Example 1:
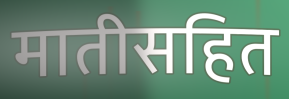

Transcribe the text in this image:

मातीसहित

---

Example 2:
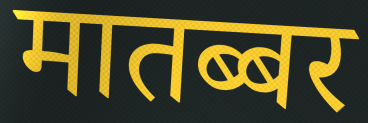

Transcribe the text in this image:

मातब्बर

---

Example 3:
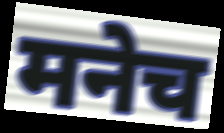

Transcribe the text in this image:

मनेच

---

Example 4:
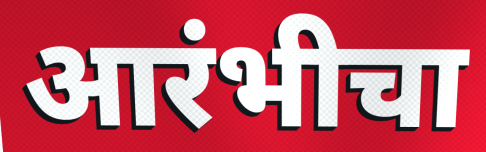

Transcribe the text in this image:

आरंभीचा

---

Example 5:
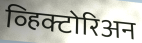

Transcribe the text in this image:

व्हिक्टोरिअन